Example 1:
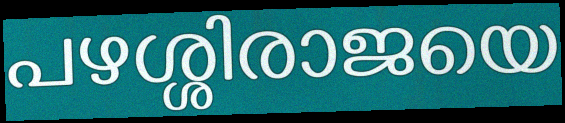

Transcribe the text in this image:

പഴശ്ശിരാജയെ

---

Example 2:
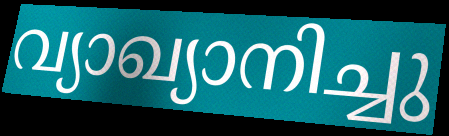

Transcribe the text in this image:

വ്യാഖ്യാനിച്ചു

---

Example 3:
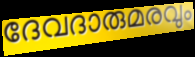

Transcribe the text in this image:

ദേവദാരുമരവും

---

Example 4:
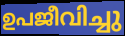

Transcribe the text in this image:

ഉപജീവിച്ചു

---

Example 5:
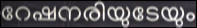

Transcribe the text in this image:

റേഷനരിയുടേയും